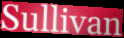
Sullivan